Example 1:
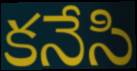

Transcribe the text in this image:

కనేసి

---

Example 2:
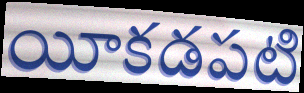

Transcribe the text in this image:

యీకడపటి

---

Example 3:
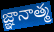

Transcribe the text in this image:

జ్ఞానాత్మ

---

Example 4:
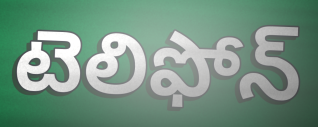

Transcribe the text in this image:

టెలిఫోన్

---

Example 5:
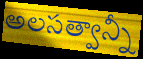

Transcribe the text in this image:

అలసత్వాన్నీ